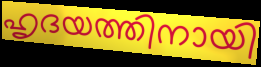
ഹൃദയത്തിനായി